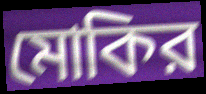
মোকির